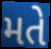
મતે